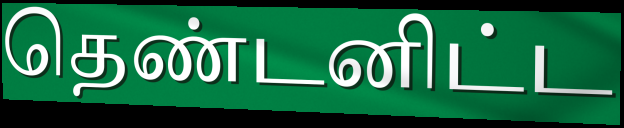
தெண்டனிட்ட